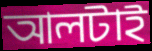
আলটাই